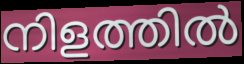
നിളത്തിൽ